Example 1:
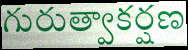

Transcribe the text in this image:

గురుత్వాకర్షణ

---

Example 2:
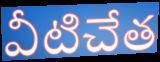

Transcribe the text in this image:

వీటిచేత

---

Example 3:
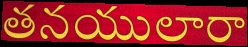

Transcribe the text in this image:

తనయులారా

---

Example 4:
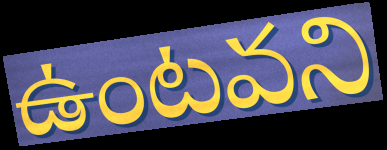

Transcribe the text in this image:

ఉంటవని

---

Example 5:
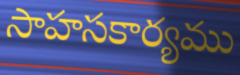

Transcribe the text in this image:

సాహసకార్యము